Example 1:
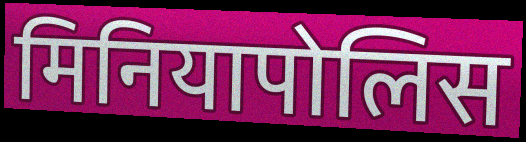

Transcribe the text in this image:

मिनियापोलिस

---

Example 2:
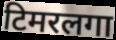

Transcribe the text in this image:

टिमरलगा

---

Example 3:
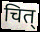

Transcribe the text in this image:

चित्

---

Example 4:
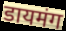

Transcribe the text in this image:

डायमंग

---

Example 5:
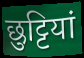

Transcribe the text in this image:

छुट्टियां